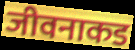
जीवनाकड